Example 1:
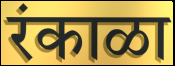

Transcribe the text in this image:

रंकाळा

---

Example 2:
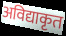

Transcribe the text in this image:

अविद्याकृत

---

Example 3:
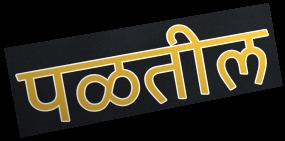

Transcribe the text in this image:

पळतील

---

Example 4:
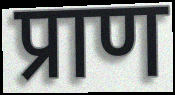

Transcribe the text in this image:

प्राण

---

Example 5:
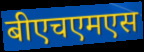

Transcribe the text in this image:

बीएचएमएस